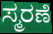
ಸ್ಮರಣೆ